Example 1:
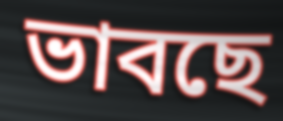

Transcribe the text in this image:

ভাবছে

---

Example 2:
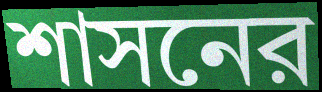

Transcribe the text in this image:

শাসনের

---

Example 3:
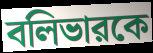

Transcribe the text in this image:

বলিভারকে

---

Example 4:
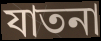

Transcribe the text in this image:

যাতনা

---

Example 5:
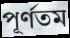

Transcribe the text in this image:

পূর্ণতম